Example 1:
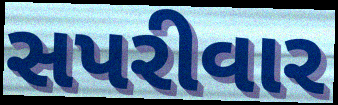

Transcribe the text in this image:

સપરીવાર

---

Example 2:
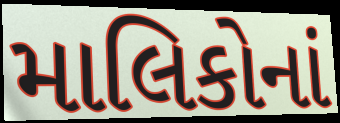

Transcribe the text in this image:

માલિકોનાં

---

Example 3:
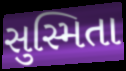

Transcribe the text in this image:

સુસ્મિતા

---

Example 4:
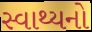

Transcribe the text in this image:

સ્વાથ્યનો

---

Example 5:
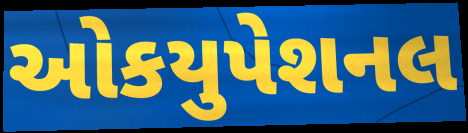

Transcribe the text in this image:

ઓકયુપેશનલ